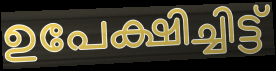
ഉപേക്ഷിച്ചിട്ട്